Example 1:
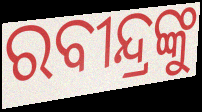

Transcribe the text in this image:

ରବୀନ୍ଦ୍ରଙ୍କୁ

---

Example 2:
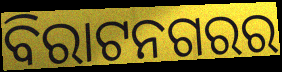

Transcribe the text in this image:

ବିରାଟନଗରର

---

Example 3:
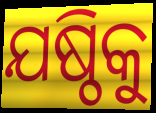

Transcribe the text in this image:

ଯଷ୍ଠିକୁ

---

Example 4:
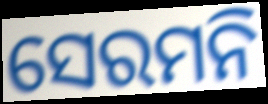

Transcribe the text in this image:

ସେରମନି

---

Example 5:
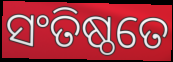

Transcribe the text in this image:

ସଂତିଷ୍ଠତେ